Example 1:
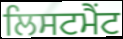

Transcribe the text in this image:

ਲਿਸਟਮੈਂਟ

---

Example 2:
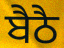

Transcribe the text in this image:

ਬੈਠੈ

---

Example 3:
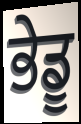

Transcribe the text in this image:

ਭੇਡੂ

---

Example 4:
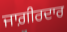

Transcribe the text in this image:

ਜਾਗ਼ੀਰਦਾਰ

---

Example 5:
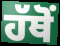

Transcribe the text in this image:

ਹੱਥੋਂ